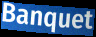
Banquet